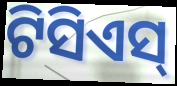
ଟିସିଏସ୍